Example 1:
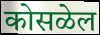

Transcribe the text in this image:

कोसळेल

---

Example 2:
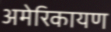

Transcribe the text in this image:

अमेरिकायण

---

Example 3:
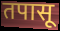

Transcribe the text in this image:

तपासू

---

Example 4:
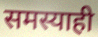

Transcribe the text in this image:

समस्याही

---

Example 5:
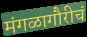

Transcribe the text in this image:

मंगळागौरीचं